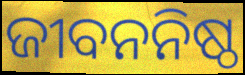
ଜୀବନନିଷ୍ଠ